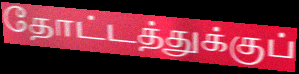
தோட்டத்துக்குப்